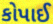
કોપાઈ